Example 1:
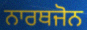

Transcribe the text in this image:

ਨਾਰਥਜੋਨ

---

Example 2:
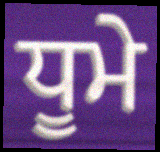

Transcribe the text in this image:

ਧੂਮੇ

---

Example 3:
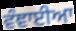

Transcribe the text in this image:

ਵੰਞਾਈਆ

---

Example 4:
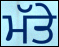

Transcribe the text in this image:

ਮੱਤੇ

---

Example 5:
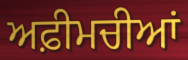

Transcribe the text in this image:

ਅਫ਼ੀਮਚੀਆਂ